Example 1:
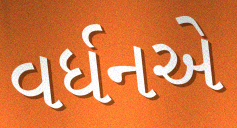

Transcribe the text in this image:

વર્ધનએ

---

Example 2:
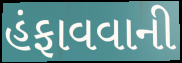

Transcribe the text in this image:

હંફાવવાની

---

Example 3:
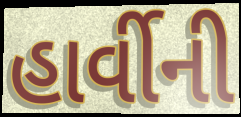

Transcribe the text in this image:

હાર્વીની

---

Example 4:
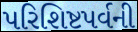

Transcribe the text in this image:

પરિશિષ્ટપર્વની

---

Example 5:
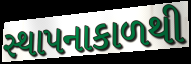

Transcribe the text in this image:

સ્થાપનાકાળથી